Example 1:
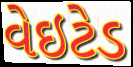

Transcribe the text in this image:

વેઇટેડ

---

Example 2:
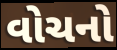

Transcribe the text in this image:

વોચનો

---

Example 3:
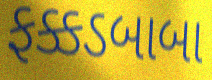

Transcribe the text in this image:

ફક્કડબાબા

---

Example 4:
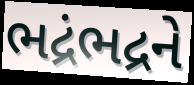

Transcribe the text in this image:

ભદ્રંભદ્રને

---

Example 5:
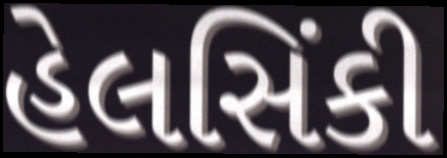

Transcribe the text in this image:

હેલસિંકી